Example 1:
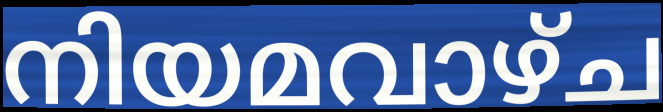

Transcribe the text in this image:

നിയമവാഴ്ച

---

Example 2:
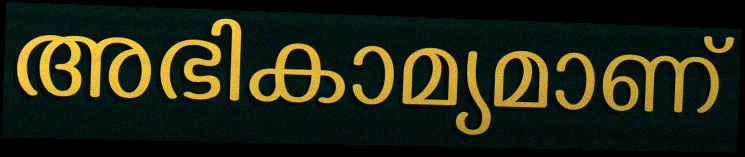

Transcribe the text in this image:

അഭികാമ്യമാണ്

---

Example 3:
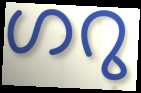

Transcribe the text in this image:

ഗറു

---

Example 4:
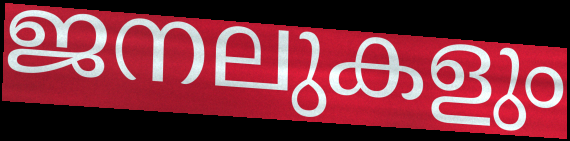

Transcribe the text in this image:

ജനലുകളും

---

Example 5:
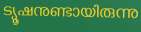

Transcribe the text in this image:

ട്യൂഷനുണ്ടായിരുന്നു